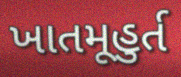
ખાતમૂહુર્ત